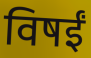
विषईं